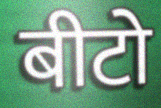
बीटो